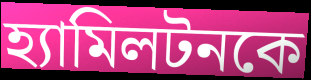
হ্যামিলটনকে